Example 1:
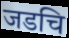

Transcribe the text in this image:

जडचि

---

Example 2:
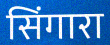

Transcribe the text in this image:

सिंगारा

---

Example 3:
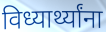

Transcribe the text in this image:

विध्यार्थ्यांना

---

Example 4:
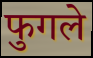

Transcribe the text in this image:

फुगले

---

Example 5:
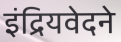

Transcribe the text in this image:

इंद्रियवेदने